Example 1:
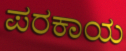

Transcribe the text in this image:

ಪರಕಾಯ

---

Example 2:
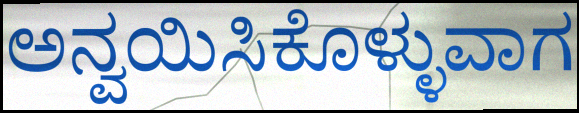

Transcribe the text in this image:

ಅನ್ವಯಿಸಿಕೊಳ್ಳುವಾಗ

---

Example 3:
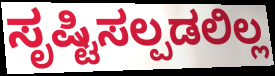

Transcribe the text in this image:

ಸೃಷ್ಟಿಸಲ್ಪಡಲಿಲ್ಲ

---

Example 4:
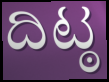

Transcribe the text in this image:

ದಿಟ್ಠ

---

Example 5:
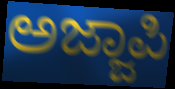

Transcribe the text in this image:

ಅಜ್ಜಾಪಿ